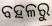
ବହଳରୁ